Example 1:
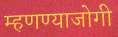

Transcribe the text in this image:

म्हणण्याजोगी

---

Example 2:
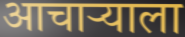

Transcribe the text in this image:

आचाऱ्याला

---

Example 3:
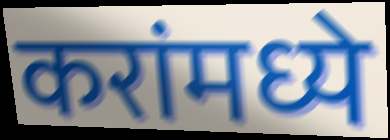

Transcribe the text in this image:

करांमध्ये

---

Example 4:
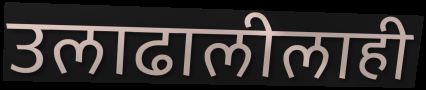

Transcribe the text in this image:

उलाढालीलाही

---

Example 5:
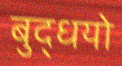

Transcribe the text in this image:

बुद्धयो